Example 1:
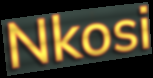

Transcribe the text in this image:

Nkosi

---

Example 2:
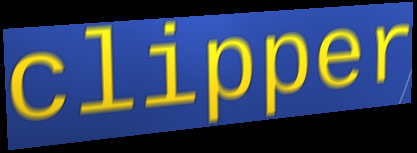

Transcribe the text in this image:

clipper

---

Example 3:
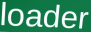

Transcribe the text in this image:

loader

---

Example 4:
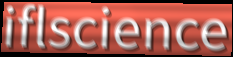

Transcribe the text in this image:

iflscience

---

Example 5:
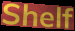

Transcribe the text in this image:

Shelf